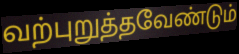
வற்புறுத்தவேண்டும்